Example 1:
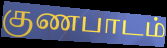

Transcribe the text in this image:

குணபாடம்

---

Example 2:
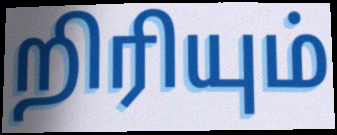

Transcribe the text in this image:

றிரியும்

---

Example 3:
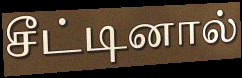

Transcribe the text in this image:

சீட்டினால்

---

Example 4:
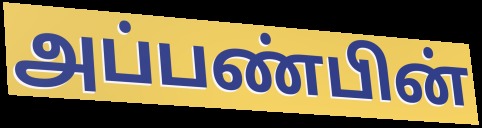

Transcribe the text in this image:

அப்பண்பின்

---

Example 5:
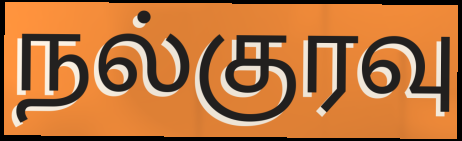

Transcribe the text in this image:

நல்குரவு